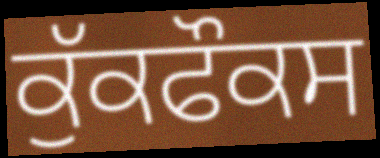
ਕੁੱਕਫੌਕਸ